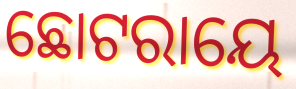
ଛୋଟରାୟେ